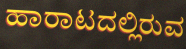
ಹಾರಾಟದಲ್ಲಿರುವ